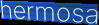
hermosa